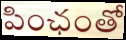
పింఛంతో